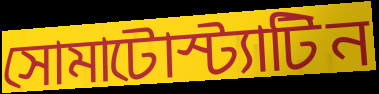
সোমাটোস্ট্যাটিন